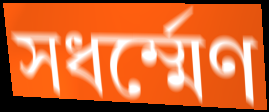
সধর্ম্মেণ